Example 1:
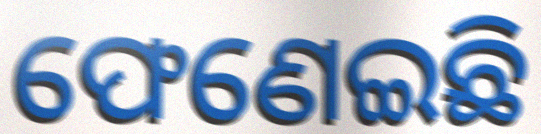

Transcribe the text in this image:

ଫେଣେଇଛି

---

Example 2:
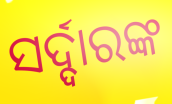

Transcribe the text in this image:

ସର୍ଦ୍ଦାରଙ୍କ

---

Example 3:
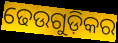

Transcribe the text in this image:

ଢେଉଗୁଡ଼ିକର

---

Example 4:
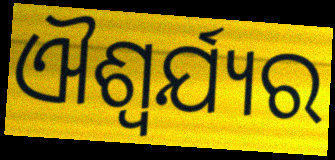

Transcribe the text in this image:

ଐଶ୍ଵର୍ଯ୍ୟର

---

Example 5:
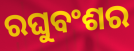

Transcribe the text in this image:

ରଘୁବଂଶର